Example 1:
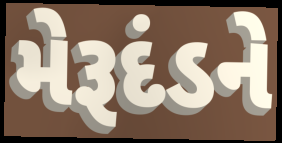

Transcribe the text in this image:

મેરૂદંડને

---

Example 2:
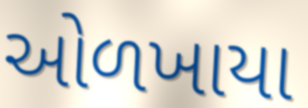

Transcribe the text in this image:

ઓળખાયા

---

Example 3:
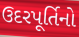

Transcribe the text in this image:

ઉદરપૂર્તિનો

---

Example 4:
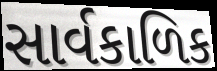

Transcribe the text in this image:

સાર્વકાળિક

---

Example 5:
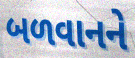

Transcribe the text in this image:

બળવાનને